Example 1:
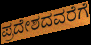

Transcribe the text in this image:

ಪ್ರದೇಶದವರೆಗೆ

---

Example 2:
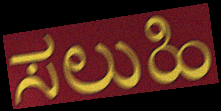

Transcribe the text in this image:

ಸಲುಹಿ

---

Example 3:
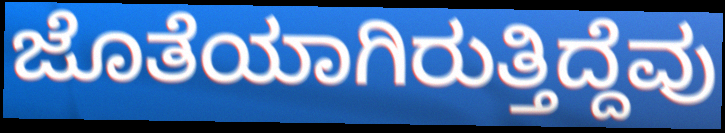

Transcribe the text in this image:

ಜೊತೆಯಾಗಿರುತ್ತಿದ್ದೆವು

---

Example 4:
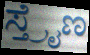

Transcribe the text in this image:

ಸ್ತ್ರೈಣ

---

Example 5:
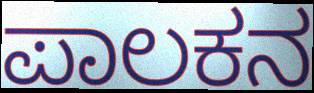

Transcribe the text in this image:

ಪಾಲಕನ